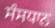
ਸੰਸਧਾਨ